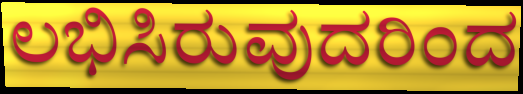
ಲಭಿಸಿರುವುದರಿಂದ